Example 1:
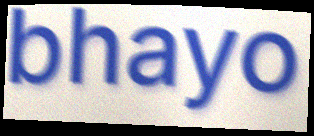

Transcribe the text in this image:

bhayo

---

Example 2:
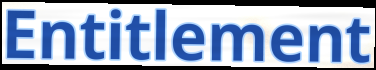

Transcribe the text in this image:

Entitlement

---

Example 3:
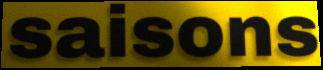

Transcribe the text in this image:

saisons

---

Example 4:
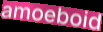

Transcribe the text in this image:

amoeboid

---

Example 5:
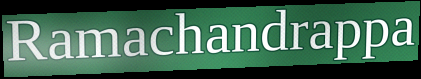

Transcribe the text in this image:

Ramachandrappa